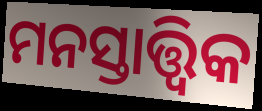
ମନସ୍ତାତ୍ତ୍ଵିକ